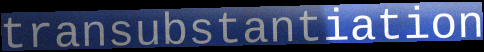
transubstantiation